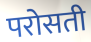
परोसती